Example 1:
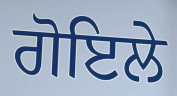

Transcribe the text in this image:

ਗੋਇਲੇ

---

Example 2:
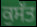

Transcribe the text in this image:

ਕੁਸੱਤ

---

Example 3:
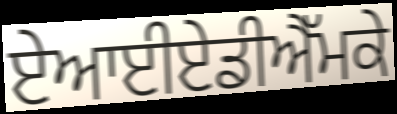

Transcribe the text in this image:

ਏਆਈਏਡੀਐੱਮਕੇ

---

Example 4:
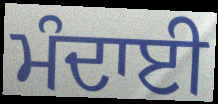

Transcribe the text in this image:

ਮੰਦਾਈ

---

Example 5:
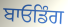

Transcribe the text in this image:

ਬਾਓਡਿੰਗ